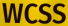
WCSS